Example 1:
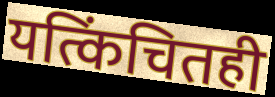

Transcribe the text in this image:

यत्किंचितही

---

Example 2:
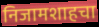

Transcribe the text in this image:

निजामशाहचा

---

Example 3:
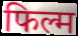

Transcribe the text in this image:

फिल्म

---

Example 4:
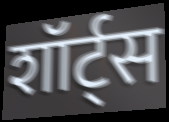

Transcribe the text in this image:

शॉर्ट्स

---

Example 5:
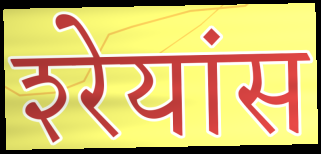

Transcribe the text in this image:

श्रेयांस